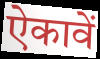
ऐकावें